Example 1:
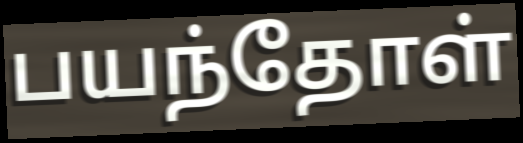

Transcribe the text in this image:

பயந்தோள்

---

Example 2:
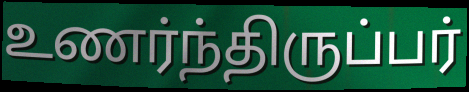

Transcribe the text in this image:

உணர்ந்திருப்பர்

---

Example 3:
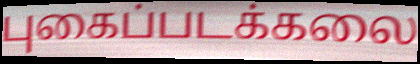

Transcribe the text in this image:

புகைப்படக்கலை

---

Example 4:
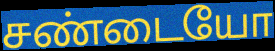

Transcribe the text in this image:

சண்டையோ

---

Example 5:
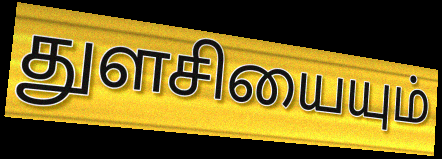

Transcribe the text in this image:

துளசியையும்